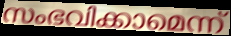
സംഭവിക്കാമെന്ന്